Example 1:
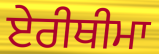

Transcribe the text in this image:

ਏਰੀਥੀਮਾ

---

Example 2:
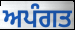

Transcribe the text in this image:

ਅਪੰਗਤ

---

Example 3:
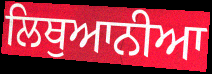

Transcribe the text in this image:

ਲਿਥੁਆਨੀਆ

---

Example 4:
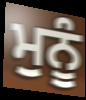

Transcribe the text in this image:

ਮੁਨੂੰ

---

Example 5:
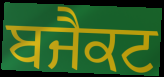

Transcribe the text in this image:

ਬਜੈਕਟ